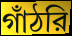
গাঁঠরি